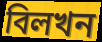
বিলখন